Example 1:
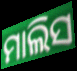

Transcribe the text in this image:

ମାଲିସ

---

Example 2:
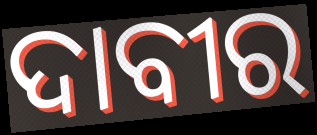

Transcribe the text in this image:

ଦାବୀର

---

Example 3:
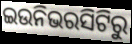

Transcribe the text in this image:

ଇଉନିଭରସିଟିରୁ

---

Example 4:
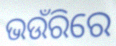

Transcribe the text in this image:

ଭଉଁରିରେ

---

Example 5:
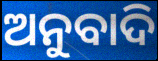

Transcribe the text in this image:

ଅନୁବାଦି